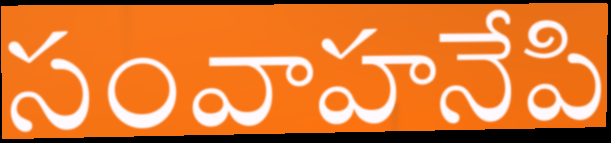
సంవాహనేపి